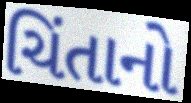
ચિંતાનો